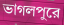
ভাগলপুরে